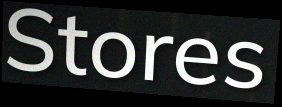
Stores